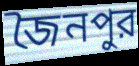
জৈনপুর